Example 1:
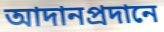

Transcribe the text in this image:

আদানপ্রদানে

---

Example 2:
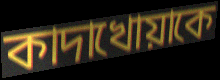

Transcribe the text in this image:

কাদাখোয়াকে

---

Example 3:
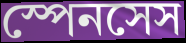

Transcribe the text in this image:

স্পেনসেস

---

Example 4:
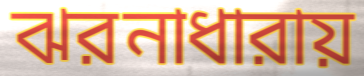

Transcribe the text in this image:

ঝরনাধারায়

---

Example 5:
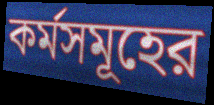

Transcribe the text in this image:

কর্মসমূহের